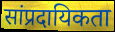
सांप्रदायिकता